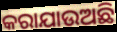
କରାଯାଉଅଛି